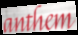
anthem